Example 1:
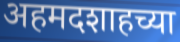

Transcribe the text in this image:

अहमदशाहच्या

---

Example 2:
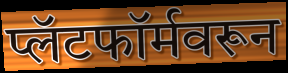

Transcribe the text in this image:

प्लॅटफॉर्मवरून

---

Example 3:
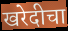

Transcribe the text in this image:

खरेदीचा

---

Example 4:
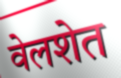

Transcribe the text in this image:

वेलशेत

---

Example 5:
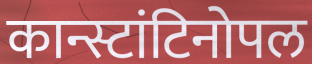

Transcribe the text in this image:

कान्स्टांटिनोपल